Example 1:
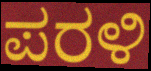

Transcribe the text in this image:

ಪರಳಿ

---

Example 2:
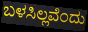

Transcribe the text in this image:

ಬಳಸಿಲ್ಲವೆಂದು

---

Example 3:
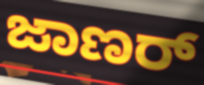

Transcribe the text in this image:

ಜಾಣರ್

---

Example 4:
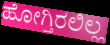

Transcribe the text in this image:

ಹೋಗ್ತಿರಲಿಲ್ಲ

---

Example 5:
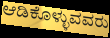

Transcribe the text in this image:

ಆಡಿಕೊಳ್ಳುವವರು